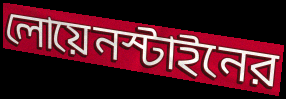
লোয়েনস্টাইনের